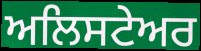
ਅਲਿਸਟੇਅਰ